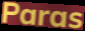
Paras